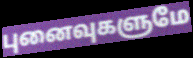
புனைவுகளுமே